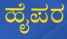
ಹೈಪರ